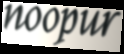
noopur